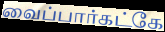
வைப்பார்கட்கே